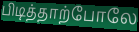
பிடித்தாற்போலே